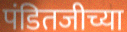
पंडितजीच्या